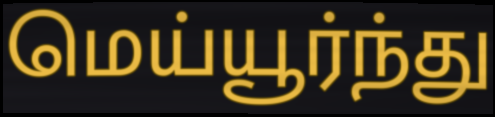
மெய்யூர்ந்து